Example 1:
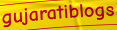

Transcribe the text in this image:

gujaratiblogs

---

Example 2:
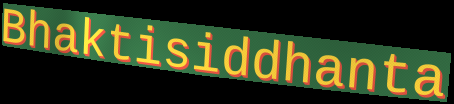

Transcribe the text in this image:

Bhaktisiddhanta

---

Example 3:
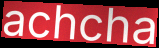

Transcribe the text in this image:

achcha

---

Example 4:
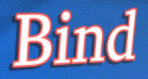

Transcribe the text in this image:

Bind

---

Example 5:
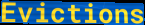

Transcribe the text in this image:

Evictions